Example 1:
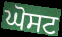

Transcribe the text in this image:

ਘੋਸਟ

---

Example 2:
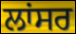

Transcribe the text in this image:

ਲਾਂਸਰ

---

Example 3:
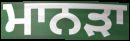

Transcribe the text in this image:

ਮਾਨੜਾ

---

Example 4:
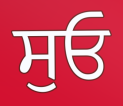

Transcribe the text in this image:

ਸੁਓ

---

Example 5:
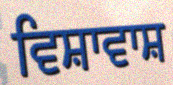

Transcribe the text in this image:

ਵਿਸ਼ਾਵਾਸ਼